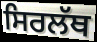
ਸਿਰਲੱਥ